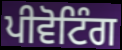
ਪੀਵੋਟਿੰਗ